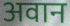
अवान